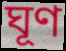
ঘূণ